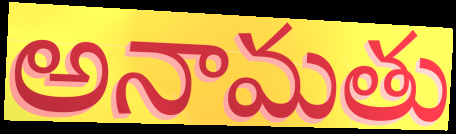
అనామతు